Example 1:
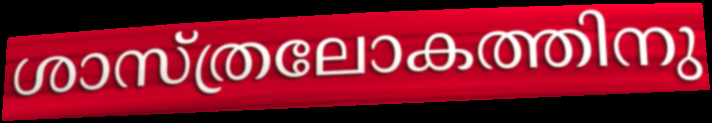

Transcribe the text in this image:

ശാസ്ത്രലോകത്തിനു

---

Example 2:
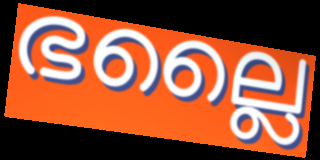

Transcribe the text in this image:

ഭല്ലൈ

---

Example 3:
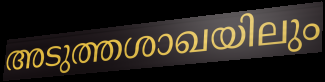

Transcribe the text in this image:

അടുത്തശാഖയിലും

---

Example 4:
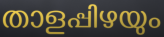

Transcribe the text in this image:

താളപ്പിഴയും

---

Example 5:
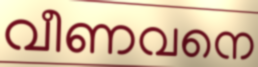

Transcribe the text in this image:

വീണവനെ